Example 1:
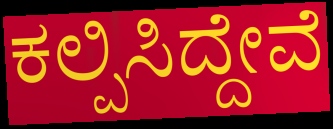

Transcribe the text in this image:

ಕಲ್ಪಿಸಿದ್ದೇವೆ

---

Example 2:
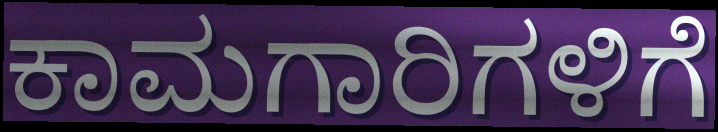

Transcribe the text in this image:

ಕಾಮಗಾರಿಗಳಿಗೆ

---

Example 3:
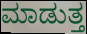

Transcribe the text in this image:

ಮಾಡುತ್ತ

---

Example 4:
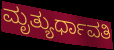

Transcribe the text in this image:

ಮೃತ್ಯುರ್ಧಾವತಿ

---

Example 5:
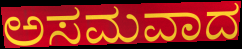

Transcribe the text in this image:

ಅಸಮವಾದ